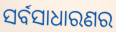
ସର୍ବସାଧାରଣର